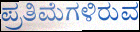
ಪ್ರತಿಮೆಗಳಿರುವ